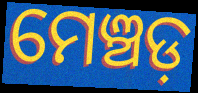
ମେଞ୍ଚଡ଼